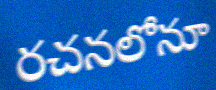
రచనలోనూ